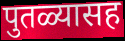
पुतळ्यासह